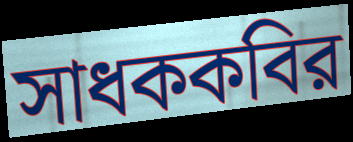
সাধককবির